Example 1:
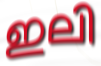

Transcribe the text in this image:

ഇലി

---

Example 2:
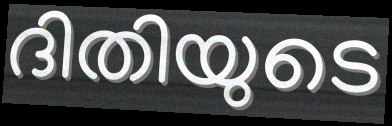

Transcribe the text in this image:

ദിതിയുടെ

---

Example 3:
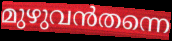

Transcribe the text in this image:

മുഴുവൻതന്നെ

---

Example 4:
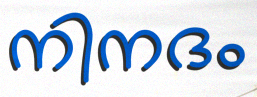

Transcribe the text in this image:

നിനദം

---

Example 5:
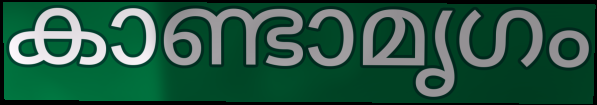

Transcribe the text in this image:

കാണ്ടാമൃഗം